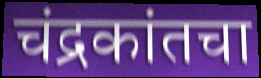
चंद्रकांतचा